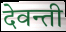
देवन्ती